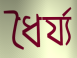
ধৈর্য্য